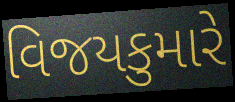
વિજયકુમારે